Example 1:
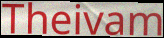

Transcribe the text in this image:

Theivam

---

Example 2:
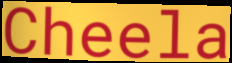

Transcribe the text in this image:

Cheela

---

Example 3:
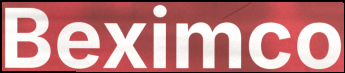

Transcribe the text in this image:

Beximco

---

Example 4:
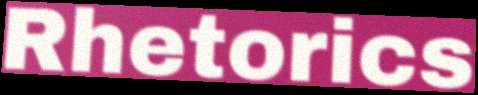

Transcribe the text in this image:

Rhetorics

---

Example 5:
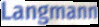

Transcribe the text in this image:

Langmann